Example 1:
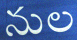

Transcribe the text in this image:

నుల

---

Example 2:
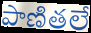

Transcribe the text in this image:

పాణితలే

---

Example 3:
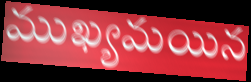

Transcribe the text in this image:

ముఖ్యమయిన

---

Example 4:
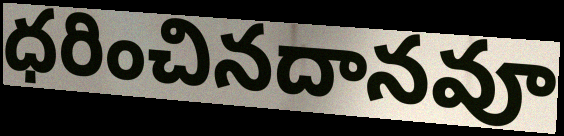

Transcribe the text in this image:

ధరించినదానవూ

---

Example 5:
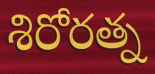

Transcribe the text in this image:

శిరోరత్న